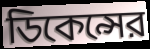
ডিকেন্সের